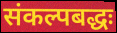
संकल्पबद्धः